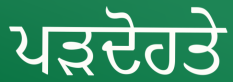
ਪੜਦੋਹਤੇ